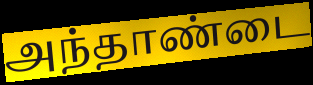
அந்தாண்டை